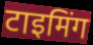
टाइमिंग